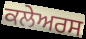
ਕਲੇਅਰਸ